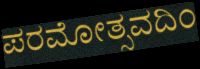
ಪರಮೋತ್ಸವದಿಂ